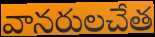
వానరులచేత